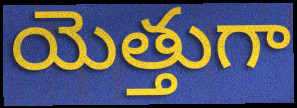
యెత్తుగా